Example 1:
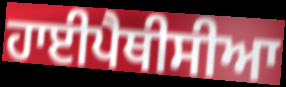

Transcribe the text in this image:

ਹਾਈਪੈਥੀਸੀਆ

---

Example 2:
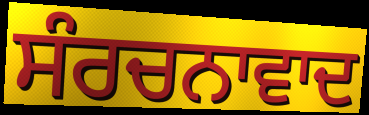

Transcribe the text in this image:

ਸੰਰਚਨਾਵਾਦ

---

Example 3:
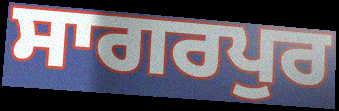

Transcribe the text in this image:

ਸਾਗਰਪੁਰ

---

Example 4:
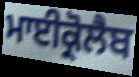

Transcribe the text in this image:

ਮਾਈਕ੍ਰੋਲੈਬ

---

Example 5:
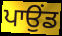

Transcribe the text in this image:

ਪਾਉਂਡ